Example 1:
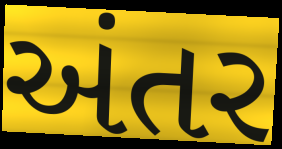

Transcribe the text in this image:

અંતર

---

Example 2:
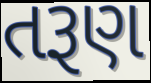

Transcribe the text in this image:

તરૂણ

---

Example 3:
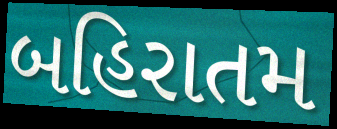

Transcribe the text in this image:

બહિરાતમ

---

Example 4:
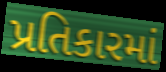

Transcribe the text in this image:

પ્રતિકારમાં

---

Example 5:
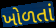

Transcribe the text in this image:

ખોળતાં